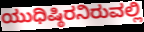
ಯುಧಿಷ್ಠಿರನಿರುವಲ್ಲಿ